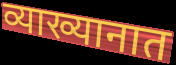
व्याख्यानात